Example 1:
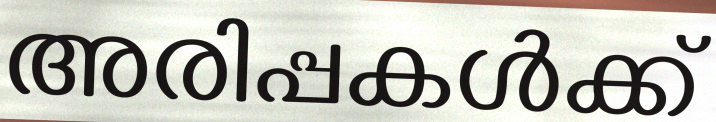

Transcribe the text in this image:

അരിപ്പകൾക്ക്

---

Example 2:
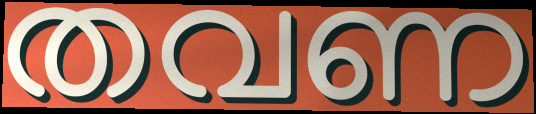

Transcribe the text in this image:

തവണ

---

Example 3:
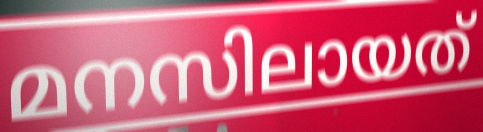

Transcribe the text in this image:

മനസിലായത്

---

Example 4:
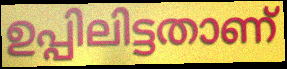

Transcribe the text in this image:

ഉപ്പിലിട്ടതാണ്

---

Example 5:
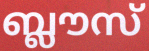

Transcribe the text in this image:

ബ്ലൗസ്